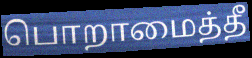
பொறாமைத்தீ